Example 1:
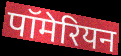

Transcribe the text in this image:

पॉमेरियन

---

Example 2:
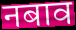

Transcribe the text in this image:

नबाव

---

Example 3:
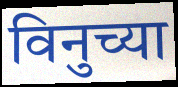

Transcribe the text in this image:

विनुच्या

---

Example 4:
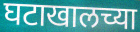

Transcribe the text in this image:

घटाखालच्या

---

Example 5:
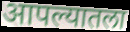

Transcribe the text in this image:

आपल्यातला